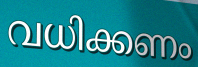
വധിക്കണം